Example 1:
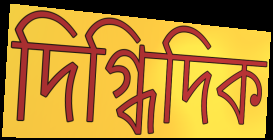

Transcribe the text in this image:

দিগ্ধিদিক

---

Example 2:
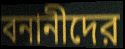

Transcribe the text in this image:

বনানীদের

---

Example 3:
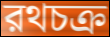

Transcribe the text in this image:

রথচক্র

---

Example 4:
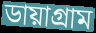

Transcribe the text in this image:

ডায়াগ্রাম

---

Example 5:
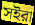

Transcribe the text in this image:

সইরা